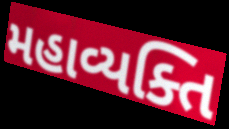
મહાવ્યક્તિ